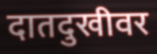
दातदुखीवर